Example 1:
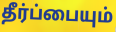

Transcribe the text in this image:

தீர்ப்பையும்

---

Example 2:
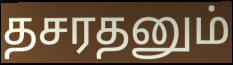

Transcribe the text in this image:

தசரதனும்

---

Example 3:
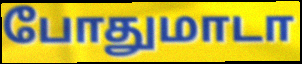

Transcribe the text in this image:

போதுமாடா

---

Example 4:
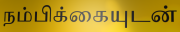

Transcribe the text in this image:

நம்பிக்கையுடன்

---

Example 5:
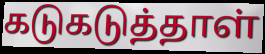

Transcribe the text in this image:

கடுகடுத்தாள்